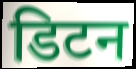
डिटन